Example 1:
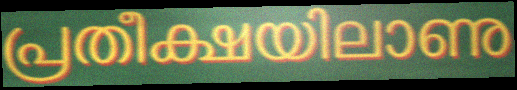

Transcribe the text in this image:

പ്രതീക്ഷയിലാണു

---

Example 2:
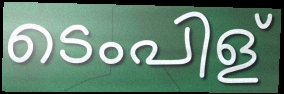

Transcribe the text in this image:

ടെംപിള്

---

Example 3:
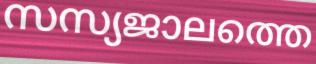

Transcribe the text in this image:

സസ്യജാലത്തെ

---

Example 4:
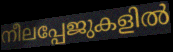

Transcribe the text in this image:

നീലപ്പേജുകളിൽ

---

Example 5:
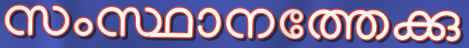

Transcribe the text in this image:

സംസ്ഥാനത്തേക്കു